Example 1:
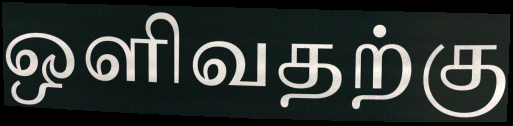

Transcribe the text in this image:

ஒளிவதற்கு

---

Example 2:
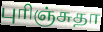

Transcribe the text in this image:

புரிஞ்சுதா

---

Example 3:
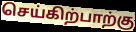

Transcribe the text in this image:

செய்கிற்பாற்கு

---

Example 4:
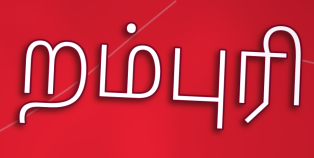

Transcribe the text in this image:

றம்புரி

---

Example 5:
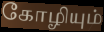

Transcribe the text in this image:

கோழியும்